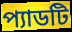
প্যাডটি